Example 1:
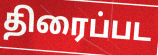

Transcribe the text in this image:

திரைப்பட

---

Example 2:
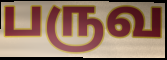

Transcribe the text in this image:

பருவ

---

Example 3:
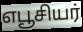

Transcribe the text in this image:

எபூசியர்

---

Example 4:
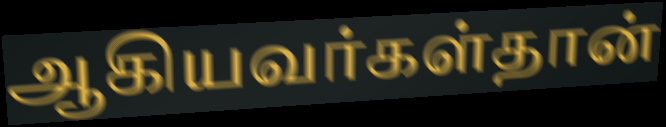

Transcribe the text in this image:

ஆகியவர்கள்தான்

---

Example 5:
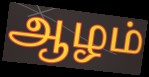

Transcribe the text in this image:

ஆழம்